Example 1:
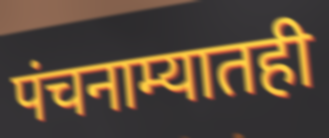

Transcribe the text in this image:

पंचनाम्यातही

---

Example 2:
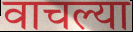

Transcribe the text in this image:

वाचल्या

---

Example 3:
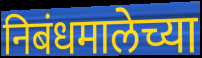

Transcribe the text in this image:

निबंधमालेच्या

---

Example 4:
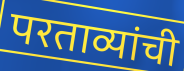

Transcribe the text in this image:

परताव्यांची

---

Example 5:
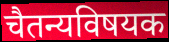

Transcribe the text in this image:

चैतन्यविषयक